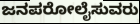
ಜನಪರೋಲೈಸುವರು